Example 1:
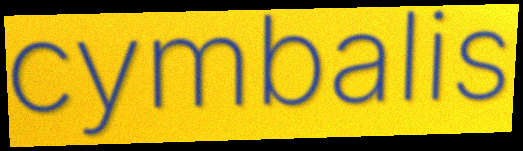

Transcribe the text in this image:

cymbalis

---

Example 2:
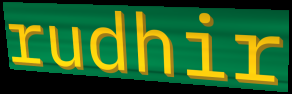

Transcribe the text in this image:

rudhir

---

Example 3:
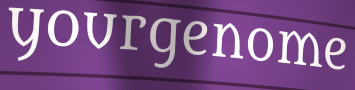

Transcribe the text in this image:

yourgenome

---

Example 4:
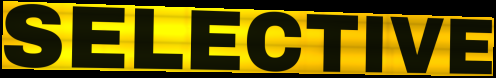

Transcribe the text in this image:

SELECTIVE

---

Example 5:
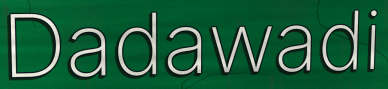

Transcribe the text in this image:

Dadawadi